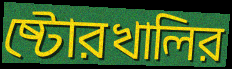
ষ্টোরখালির